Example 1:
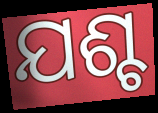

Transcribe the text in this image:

ଯଶ୍ଚ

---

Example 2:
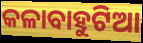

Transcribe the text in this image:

କଳାବାହୁଟିଆ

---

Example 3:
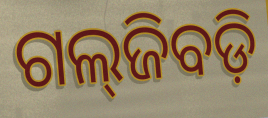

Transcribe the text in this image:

ଗଲ୍‌ଜିବଡ଼ି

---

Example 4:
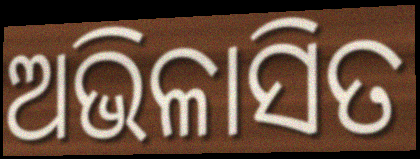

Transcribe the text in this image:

ଅଭିଳାସିତ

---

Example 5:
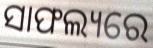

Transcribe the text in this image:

ସାଫଲ୍ୟରେ